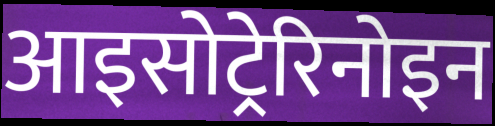
आइसोट्रेरिनोइन